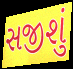
સજીશું